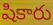
షికారు